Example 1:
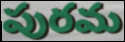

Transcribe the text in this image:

పురమ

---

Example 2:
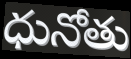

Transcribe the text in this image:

ధునోతు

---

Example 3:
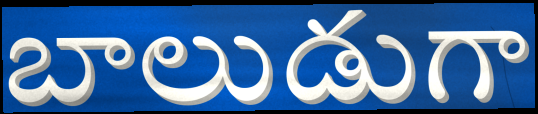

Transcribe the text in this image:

బాలుడుగా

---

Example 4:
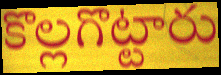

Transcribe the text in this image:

కొల్లగొట్టారు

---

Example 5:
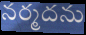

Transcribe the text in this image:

నర్మదను